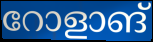
റോളാങ്